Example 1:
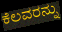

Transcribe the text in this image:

ಕೆಲವರನ್ನು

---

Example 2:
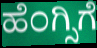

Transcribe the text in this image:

ಹೆಂಗ್ಸಿಗೆ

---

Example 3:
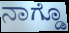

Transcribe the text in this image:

ನಾಗ್ಡೊ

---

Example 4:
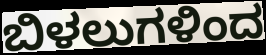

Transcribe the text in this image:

ಬಿಳಲುಗಳಿಂದ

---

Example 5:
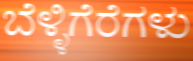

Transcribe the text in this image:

ಬೆಳ್ಳಿಗೆರೆಗಳು